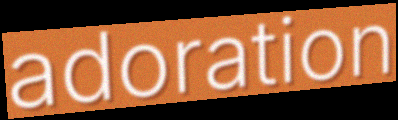
adoration